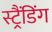
स्ट्रैंडिंग